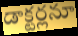
డాక్టర్లనూ